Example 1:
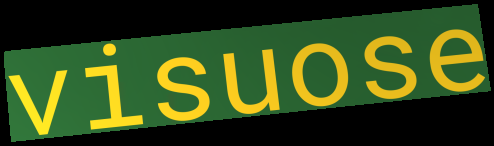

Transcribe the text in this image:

visuose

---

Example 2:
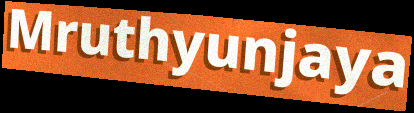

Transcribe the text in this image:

Mruthyunjaya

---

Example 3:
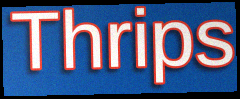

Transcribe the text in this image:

Thrips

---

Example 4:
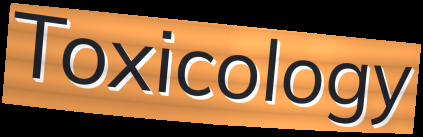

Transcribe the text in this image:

Toxicology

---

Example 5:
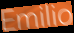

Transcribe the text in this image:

Emilio